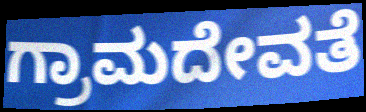
ಗ್ರಾಮದೇವತೆ